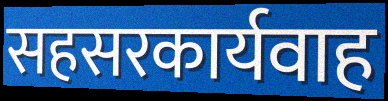
सहसरकार्यवाह